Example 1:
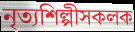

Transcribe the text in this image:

নৃত্যশিল্পীসকলক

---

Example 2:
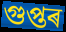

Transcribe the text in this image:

গুপ্তৰ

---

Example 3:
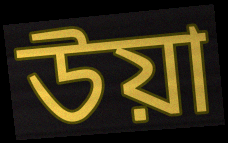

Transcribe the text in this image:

উয়া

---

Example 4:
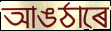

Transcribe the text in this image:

আঙঠাৰে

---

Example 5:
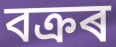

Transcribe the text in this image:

বক্ৰৰ